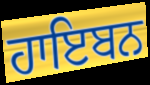
ਹਾਇਬਨ